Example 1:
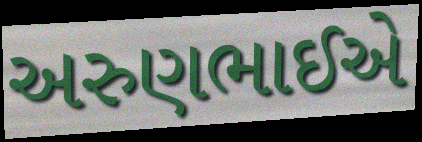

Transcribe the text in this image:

અરુણભાઈએ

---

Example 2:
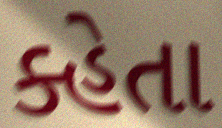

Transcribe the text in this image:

ક્હેતા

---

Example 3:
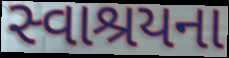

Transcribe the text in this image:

સ્વાશ્રયના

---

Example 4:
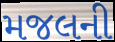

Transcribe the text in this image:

મજલની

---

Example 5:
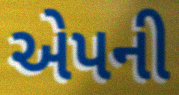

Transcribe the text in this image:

એપની